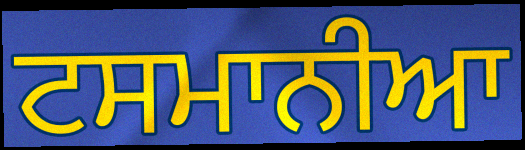
ਟਸਮਾਨੀਆ